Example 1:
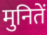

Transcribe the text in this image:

मुनितें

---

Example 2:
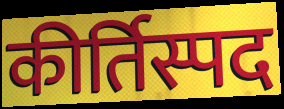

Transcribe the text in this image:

कीर्तिस्पद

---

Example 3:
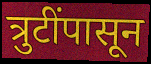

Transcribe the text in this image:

त्रुटींपासून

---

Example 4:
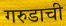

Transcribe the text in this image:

गरुडाची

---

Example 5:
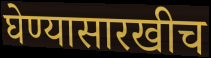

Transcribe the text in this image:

घेण्यासारखीच